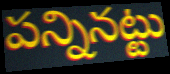
పన్నినట్టు